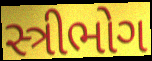
સ્ત્રીભોગ